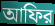
আফির